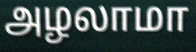
அழலாமா